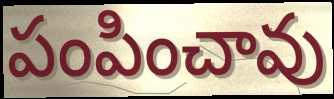
పంపించావు